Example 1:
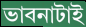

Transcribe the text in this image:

ভাবনাটাই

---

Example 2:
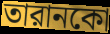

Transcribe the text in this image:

তারানকো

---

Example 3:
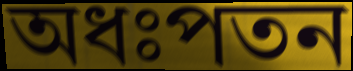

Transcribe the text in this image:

অধঃপতন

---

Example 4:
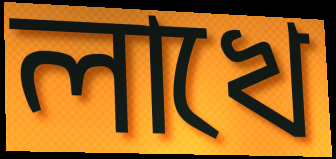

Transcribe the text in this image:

লাখে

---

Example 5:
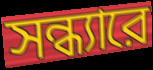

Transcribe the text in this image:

সন্ধ্যারে